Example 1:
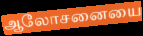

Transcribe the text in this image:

ஆலோசனையை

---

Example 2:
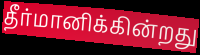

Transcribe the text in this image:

தீர்மானிக்கின்றது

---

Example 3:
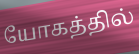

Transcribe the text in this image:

யோகத்தில்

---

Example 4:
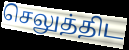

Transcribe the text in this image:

செலுத்திட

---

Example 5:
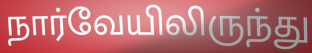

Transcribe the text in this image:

நார்வேயிலிருந்து